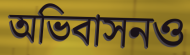
অভিবাসনও